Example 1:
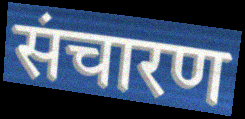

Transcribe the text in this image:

संचारण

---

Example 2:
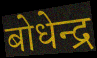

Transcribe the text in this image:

बोधेन्द्र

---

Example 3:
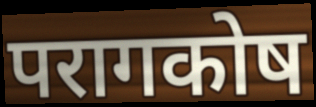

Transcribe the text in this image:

परागकोष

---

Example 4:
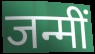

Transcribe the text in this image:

जन्मीं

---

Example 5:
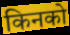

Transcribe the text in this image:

किनको